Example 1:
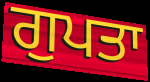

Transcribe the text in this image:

ਗੁਪਤਾ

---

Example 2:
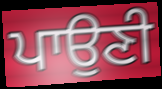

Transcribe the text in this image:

ਪਾਉਣੀ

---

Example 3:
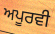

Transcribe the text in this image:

ਅਪੂਰਵੀ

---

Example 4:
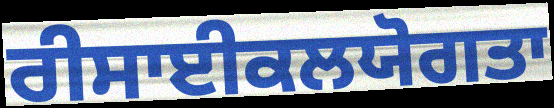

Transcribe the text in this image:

ਰੀਸਾਈਕਲਯੋਗਤਾ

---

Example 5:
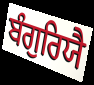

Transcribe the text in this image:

ਬੰਗੁਰਿਯੈ